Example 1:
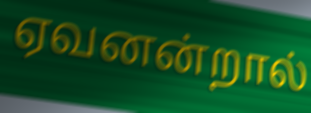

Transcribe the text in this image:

ஏவனன்றால்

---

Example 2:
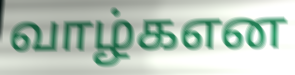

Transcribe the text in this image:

வாழ்கஎன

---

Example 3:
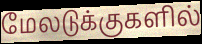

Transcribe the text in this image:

மேலடுக்குகளில்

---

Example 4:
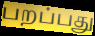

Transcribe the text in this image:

பறப்பது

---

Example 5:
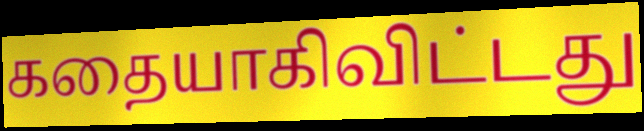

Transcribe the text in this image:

கதையாகிவிட்டது